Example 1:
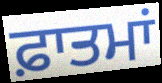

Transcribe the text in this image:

ਫ਼ਾਤਮਾਂ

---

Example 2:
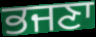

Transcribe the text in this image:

ਭਜਣਾ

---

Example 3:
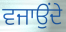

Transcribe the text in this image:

ਵਜਾਉਂਦੇ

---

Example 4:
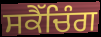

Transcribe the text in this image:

ਸਕੈੱਚਿੰਗ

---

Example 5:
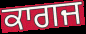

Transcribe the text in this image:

ਕਾਗਜ